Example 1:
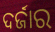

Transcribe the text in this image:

ଦର୍ଜାର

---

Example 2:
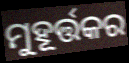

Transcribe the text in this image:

ମୁହୂର୍ତ୍ତକର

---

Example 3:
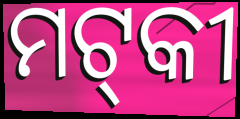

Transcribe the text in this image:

ମଟ୍‌କୀ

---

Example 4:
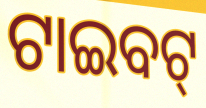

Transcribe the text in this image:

ଟାଇବଟ୍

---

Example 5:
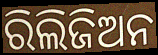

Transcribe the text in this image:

ରିଲିଜିଅନ